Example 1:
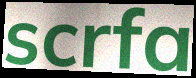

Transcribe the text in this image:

scrfa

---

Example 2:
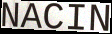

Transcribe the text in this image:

NACIN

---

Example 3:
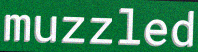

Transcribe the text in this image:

muzzled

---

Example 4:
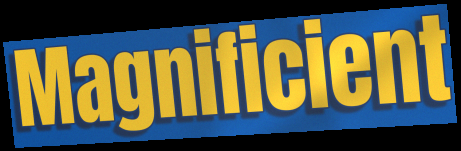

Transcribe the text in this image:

Magnificient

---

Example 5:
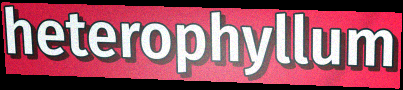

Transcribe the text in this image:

heterophyllum